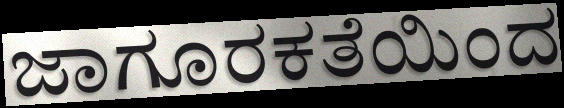
ಜಾಗೂರಕತೆಯಿಂದ